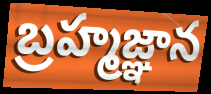
బ్రహ్మజ్ఞాన